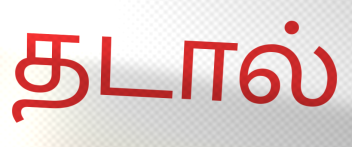
தடால்